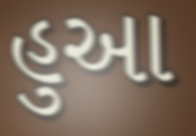
હુઆ